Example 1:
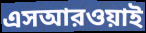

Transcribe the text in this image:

এসআরওয়াই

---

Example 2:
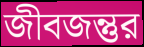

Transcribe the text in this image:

জীবজন্তুর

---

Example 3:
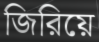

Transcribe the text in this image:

জিরিয়ে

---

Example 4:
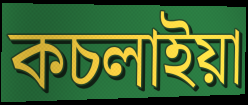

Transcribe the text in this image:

কচলাইয়া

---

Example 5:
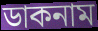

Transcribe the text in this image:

ডাকনাম